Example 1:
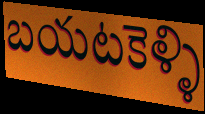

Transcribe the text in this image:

బయటకెళ్ళి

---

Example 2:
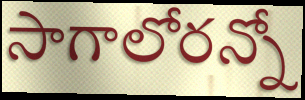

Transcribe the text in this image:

సాగాలోరన్నో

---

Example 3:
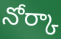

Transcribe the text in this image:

నోర్కా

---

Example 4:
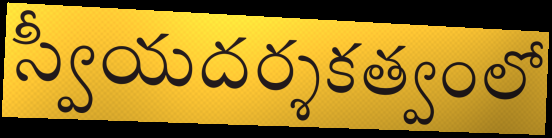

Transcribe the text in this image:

స్వీయదర్శకత్వంలో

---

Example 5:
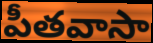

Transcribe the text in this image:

పీతవాసా